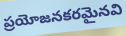
ప్రయోజనకరమైనవి